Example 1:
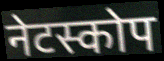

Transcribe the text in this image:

नेटस्कोप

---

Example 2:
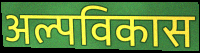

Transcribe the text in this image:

अल्पविकास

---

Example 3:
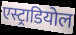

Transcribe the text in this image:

एस्ट्राडियोल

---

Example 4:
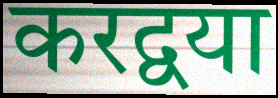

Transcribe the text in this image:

करद्वया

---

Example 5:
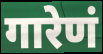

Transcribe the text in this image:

गारेणं